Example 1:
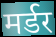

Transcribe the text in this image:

मर्डर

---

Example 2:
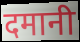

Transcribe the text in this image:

दमानी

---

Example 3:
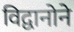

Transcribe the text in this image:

विद्वानोने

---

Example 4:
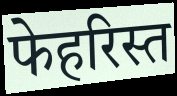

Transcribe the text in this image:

फेहरिस्‍त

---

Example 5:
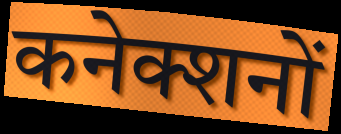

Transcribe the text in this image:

कनेक्शनों